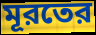
মূরতের